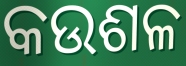
କଉଶଳ